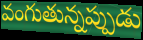
వంగుతున్నప్పుడు